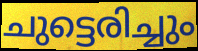
ചുട്ടെരിച്ചും